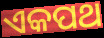
ଏକପଥ